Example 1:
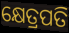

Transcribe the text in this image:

କ୍ଷେତ୍ରପତି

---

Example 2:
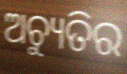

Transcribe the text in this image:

ଅଚ୍ୟୁତିର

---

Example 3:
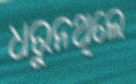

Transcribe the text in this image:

ଧରୁନଥିଲେ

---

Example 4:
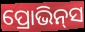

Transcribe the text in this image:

ପ୍ରୋଭିନ୍‌ସ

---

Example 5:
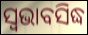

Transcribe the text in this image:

ସ୍ଵଭାବସିଦ୍ଧ